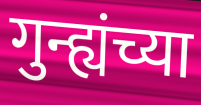
गुन्ह्यंच्या